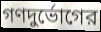
গণদুর্ভোগের